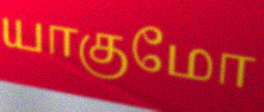
யாகுமோ